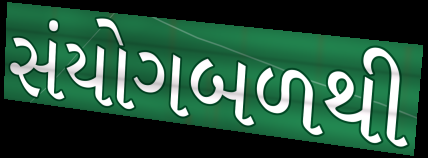
સંયોગબળથી